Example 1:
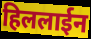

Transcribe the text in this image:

हिललाईन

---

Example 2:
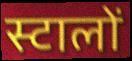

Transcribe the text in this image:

स्टालों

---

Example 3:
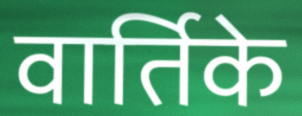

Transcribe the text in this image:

वार्तिके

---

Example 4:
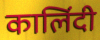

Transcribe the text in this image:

कालिंदी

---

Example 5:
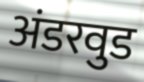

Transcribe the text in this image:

अंडरवुड